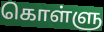
கொள்ளு